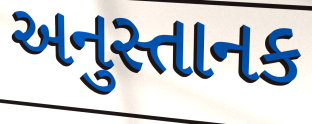
અનુસ્તાનક